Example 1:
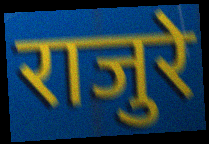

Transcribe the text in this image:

राजुरे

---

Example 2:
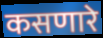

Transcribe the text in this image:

कसणारे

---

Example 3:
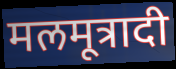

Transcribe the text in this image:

मलमूत्रादी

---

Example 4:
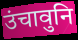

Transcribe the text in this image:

उंचावुनि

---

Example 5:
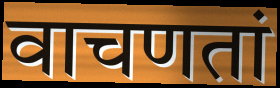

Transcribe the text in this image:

वाचणतां